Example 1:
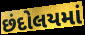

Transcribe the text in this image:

છંદોલયમાં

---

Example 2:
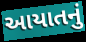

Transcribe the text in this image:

આયાતનું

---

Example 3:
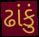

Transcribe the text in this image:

ઢાંકું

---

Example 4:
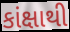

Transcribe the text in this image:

કાંક્ષાથી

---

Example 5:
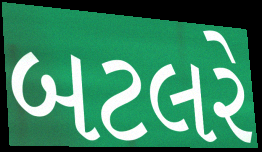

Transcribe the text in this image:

બટલરે